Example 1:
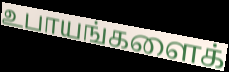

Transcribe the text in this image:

உபாயங்களைக்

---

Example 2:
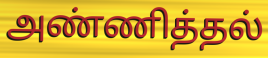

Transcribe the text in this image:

அண்ணித்தல்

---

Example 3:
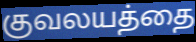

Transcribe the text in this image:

குவலயத்தை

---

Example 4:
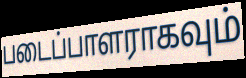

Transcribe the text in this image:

படைப்பாளராகவும்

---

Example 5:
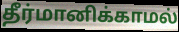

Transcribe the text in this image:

தீர்மானிக்காமல்